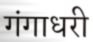
गंगाधरी